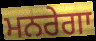
ਮਨਰੇਗਾ